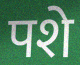
पशे